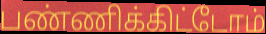
பண்ணிக்கிட்டோம்